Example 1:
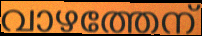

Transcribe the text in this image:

വാഴത്തേന്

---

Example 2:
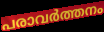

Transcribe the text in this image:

പരാവർത്തനം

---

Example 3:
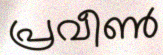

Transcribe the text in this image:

പ്രവീൺ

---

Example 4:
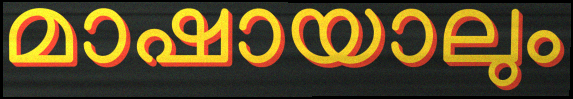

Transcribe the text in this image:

മാഷായാലും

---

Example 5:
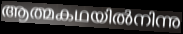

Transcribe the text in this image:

ആത്മകഥയിൽനിന്നു